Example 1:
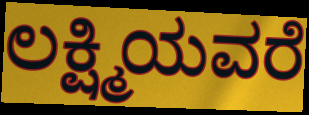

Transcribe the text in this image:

ಲಕ್ಷ್ಮಿಯವರೆ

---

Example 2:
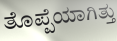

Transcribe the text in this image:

ತೊಪ್ಪೆಯಾಗಿತ್ತು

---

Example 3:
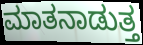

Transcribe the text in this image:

ಮಾತನಾಡುತ್ತ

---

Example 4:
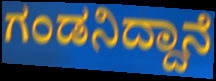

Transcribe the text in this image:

ಗಂಡನಿದ್ದಾನೆ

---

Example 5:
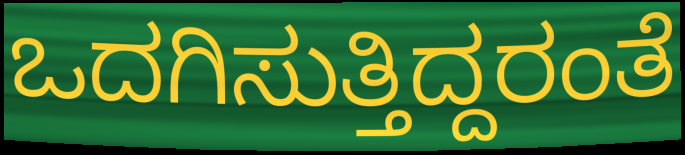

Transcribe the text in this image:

ಒದಗಿಸುತ್ತಿದ್ದರಂತೆ